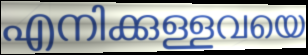
എനിക്കുള്ളവയെ